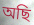
অছি